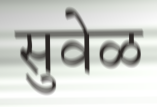
सुवेळ